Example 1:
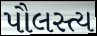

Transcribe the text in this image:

પૌલસ્ત્ય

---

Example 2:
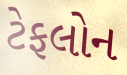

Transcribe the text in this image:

ટેફલોન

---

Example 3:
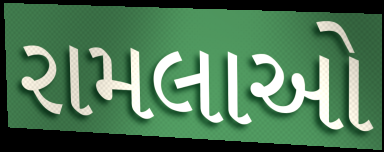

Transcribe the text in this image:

રામલાઓ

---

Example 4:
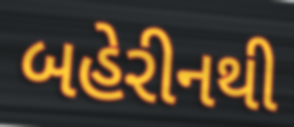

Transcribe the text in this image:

બહેરીનથી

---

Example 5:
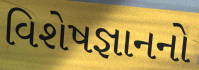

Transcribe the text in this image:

વિશેષજ્ઞાનનો